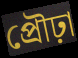
প্রৌঢ়া